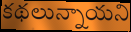
కథలున్నాయని